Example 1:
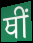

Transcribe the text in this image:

ਥੀਂ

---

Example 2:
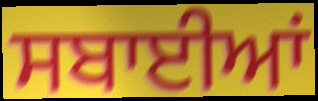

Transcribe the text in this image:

ਸਬਾਈਆਂ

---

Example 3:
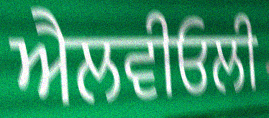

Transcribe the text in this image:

ਐਲਵੀਓਲੀ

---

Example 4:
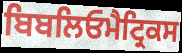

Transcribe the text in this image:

ਬਿਬਲਿਓਮੈਟ੍ਰਿਕਸ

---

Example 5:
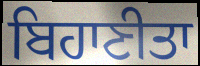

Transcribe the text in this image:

ਬਿਹਾਣੀਤਾ